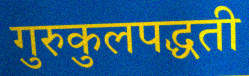
गुरुकुलपद्धती